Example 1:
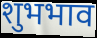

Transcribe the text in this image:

शुभभाव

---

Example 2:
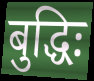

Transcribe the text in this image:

बुद्धिः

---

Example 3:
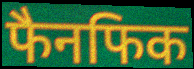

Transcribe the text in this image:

फैनफिक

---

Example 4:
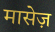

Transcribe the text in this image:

मासेज़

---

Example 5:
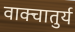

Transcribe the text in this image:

वाक्चातुर्य